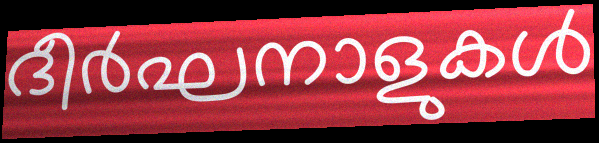
ദീർഘനാളുകൾ